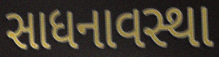
સાધનાવસ્થા